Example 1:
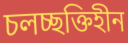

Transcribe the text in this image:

চলচ্ছক্তিহীন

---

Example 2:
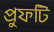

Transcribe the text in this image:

প্রুফটি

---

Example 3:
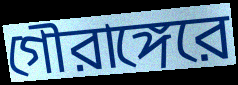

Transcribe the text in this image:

গৌরাঙ্গেরে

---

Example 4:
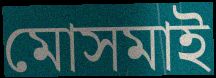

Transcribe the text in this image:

মোসমাই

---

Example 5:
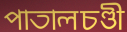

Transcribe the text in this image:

পাতালচণ্ডী